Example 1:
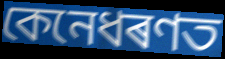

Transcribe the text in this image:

কেনেধৰণত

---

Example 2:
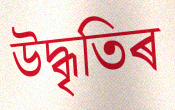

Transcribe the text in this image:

উদ্ধৃতিৰ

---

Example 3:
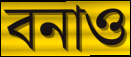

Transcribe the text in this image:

বনাও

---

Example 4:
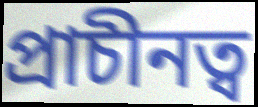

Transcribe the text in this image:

প্ৰাচীনত্ব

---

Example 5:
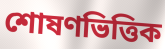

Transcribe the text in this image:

শোষণভিত্তিক